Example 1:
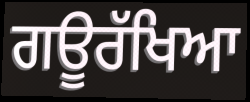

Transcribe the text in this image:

ਗਊਰੱਖਿਆ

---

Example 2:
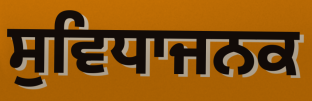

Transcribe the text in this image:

ਸੁਵਿਧਾਜਨਕ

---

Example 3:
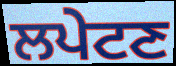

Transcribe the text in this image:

ਲਪੇਟਣ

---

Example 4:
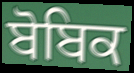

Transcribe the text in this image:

ਬੋਬਿਕ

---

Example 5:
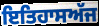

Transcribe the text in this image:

ਇਤਿਹਾਸਅੱਜ